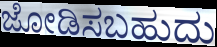
ಜೋಡಿಸಬಹುದು